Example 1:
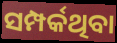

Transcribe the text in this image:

ସମ୍ପର୍କଥିବା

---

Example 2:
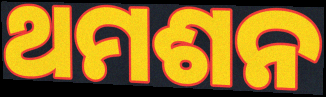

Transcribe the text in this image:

ଥମଶନ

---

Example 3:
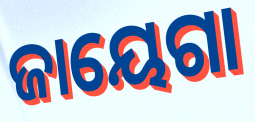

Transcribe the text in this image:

ଜାୟେଗା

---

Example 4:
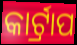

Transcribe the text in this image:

କାର୍ଟ୍ରାପ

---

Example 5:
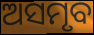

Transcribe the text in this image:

ଅସମୃବ